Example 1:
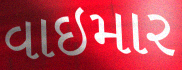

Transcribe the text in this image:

વાઇમાર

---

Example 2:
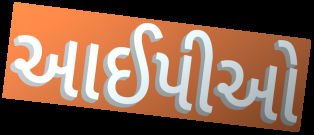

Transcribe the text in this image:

આઈપીઓ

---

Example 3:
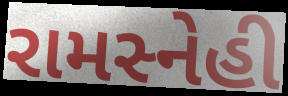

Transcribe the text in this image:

રામસ્નેહી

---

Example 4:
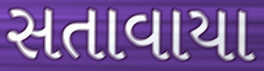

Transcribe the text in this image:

સતાવાયા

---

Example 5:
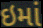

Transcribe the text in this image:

ઇમાં